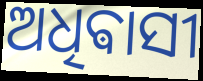
ଅଧିଵାସୀ